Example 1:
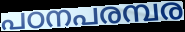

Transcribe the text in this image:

പഠനപരമ്പര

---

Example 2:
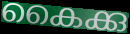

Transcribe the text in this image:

കൈക്കു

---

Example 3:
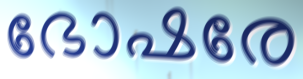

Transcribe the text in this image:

ഭോഷരേ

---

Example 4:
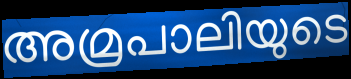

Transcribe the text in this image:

അമ്രപാലിയുടെ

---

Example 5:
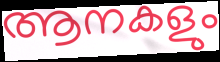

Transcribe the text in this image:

ആനകളും